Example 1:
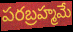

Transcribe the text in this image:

పరబ్రహ్మమే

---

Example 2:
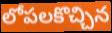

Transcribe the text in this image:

లోపలకొచ్చిన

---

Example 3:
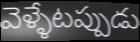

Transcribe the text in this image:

వెళ్ళేటప్పుడు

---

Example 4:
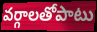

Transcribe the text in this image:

వర్గాలతోపాటు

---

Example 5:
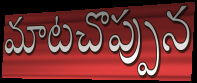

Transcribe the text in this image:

మాటచొప్పున